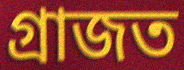
গ্ৰাজত